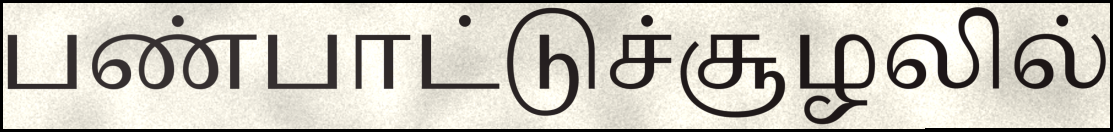
பண்பாட்டுச்சூழலில்